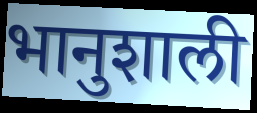
भानुशाली